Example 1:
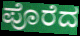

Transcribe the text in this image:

ಪೊರೆದ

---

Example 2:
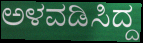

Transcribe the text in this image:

ಅಳವಡಿಸಿದ್ದ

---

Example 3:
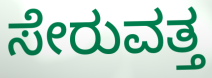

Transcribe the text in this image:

ಸೇರುವತ್ತ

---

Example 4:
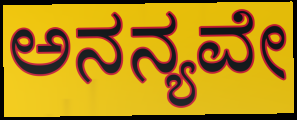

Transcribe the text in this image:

ಅನನ್ಯವೇ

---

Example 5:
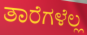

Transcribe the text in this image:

ತಾರೆಗಳೆಲ್ಲ